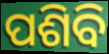
ପଶିବି